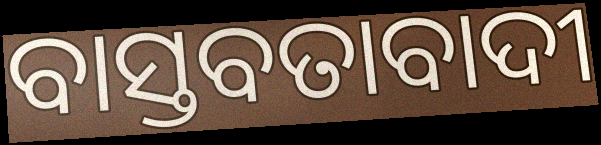
ବାସ୍ତବତାବାଦୀ